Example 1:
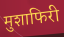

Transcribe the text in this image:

मुशाफिरी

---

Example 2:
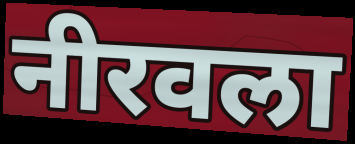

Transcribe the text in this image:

नीरवला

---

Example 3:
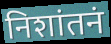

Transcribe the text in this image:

निशांतनं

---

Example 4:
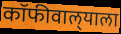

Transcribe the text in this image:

कॉफीवाल्याला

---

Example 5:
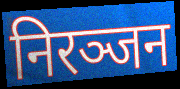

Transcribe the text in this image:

निरञ्जन